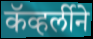
कॅव्हर्लीने